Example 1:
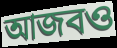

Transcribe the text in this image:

আজবও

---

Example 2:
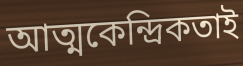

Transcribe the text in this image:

আত্মকেন্দ্রিকতাই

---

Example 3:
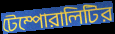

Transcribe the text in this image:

টেম্পোরালিটির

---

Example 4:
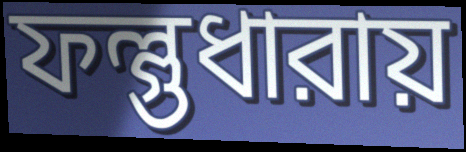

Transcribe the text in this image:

ফল্গুধারায়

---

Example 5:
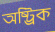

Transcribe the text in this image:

অষ্ট্রিক